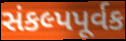
સંકલ્પપૂર્વક